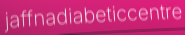
jaffnadiabeticcentre